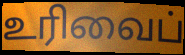
உரிவைப்